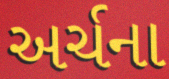
અર્ચના